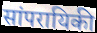
सांपरायिकी